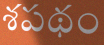
శపథం